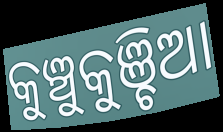
କୁଞ୍ଚୁକୁଞ୍ଚିଆ